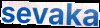
sevaka